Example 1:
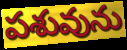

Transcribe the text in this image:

పశువును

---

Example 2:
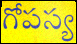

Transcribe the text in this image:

గోపస్య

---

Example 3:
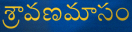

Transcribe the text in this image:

శ్రావణమాసం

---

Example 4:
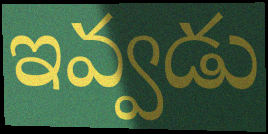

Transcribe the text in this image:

ఇవ్వడు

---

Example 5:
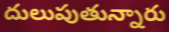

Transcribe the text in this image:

దులుపుతున్నారు